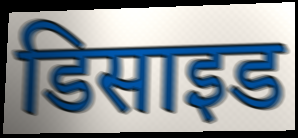
डिसाइड